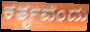
ಕರ್ತೃವೆಂದು